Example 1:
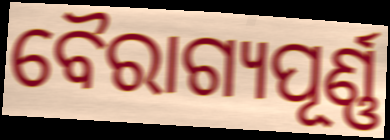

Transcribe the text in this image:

ବୈରାଗ୍ୟପୂର୍ଣ୍ଣ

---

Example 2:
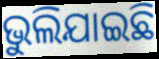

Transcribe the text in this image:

ଭୁଲିଯାଇଛି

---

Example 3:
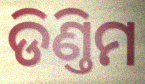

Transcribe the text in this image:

ଡିଣ୍ତିମ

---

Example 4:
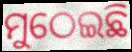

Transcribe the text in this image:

ମୁଠେଇଛି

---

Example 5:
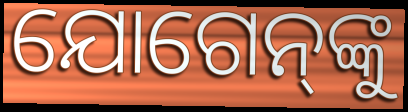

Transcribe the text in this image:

ଯୋଗେନ୍‌ଙ୍କୁ